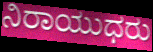
ನಿರಾಯುಧರು